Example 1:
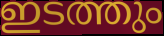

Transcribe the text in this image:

ഇടത്തും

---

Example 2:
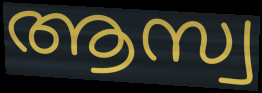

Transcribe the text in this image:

ആസ്വ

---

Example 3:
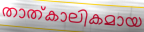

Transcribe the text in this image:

താത്കാലികമായ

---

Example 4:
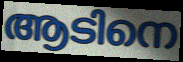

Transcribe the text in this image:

ആടിനെ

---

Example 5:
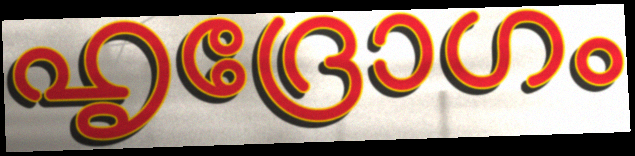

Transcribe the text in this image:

ഹൃദ്രോഗം